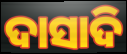
ଦାସାଦି